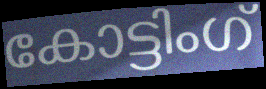
കോട്ടിംഗ്